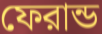
ফেরান্ড